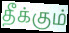
தீக்கும்